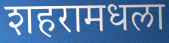
शहरामधला